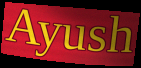
Ayush